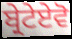
ਬ੍ਰੇਟੇਏਵੋ